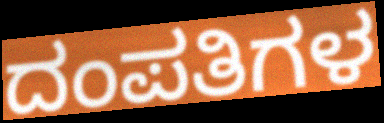
ದಂಪತಿಗಳ